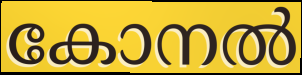
കോനൽ